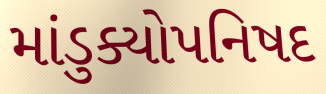
માંડુક્યોપનિષદ